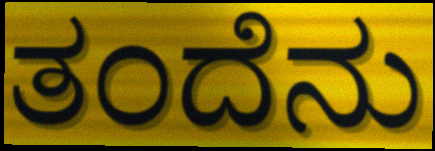
ತಂದೆನು